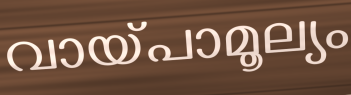
വായ്പാമൂല്യം